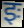
इः